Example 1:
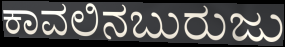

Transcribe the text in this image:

ಕಾವಲಿನಬುರುಜು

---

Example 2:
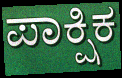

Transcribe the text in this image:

ಪಾಕ್ಷಿಕ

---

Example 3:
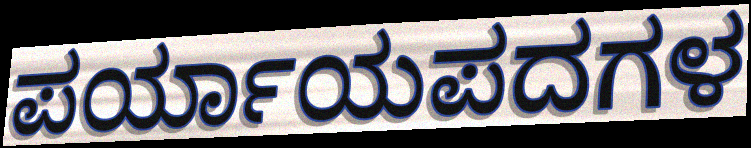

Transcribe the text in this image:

ಪರ್ಯಾಯಪದಗಳ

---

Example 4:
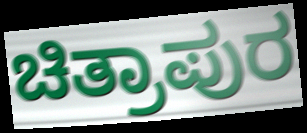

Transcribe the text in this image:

ಚಿತ್ರಾಪುರ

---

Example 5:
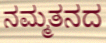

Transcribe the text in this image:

ನಮ್ಮತನದ